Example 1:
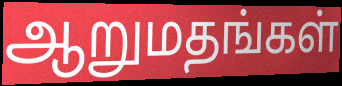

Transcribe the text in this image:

ஆறுமதங்கள்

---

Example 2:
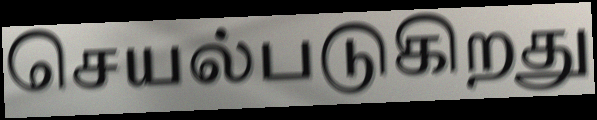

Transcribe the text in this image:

செயல்படுகிறது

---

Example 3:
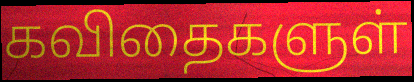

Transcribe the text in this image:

கவிதைகளுள்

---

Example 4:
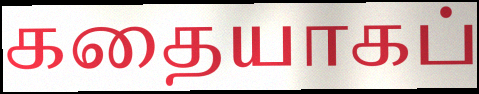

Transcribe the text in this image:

கதையாகப்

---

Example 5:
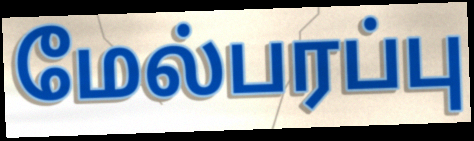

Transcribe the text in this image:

மேல்பரப்பு